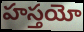
హస్తయో